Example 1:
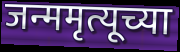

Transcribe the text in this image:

जन्ममृत्यूच्या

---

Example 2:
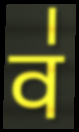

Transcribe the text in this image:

व॑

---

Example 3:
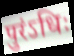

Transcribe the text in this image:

पुरंऽधिः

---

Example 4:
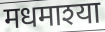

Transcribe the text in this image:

मधमाश्‍या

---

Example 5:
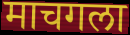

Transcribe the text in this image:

माचगला